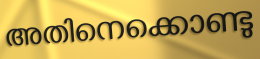
അതിനെക്കൊണ്ടു